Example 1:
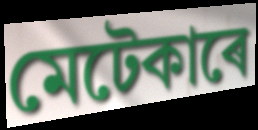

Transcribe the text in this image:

মেটেকাৰে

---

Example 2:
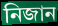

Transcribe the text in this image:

নিজান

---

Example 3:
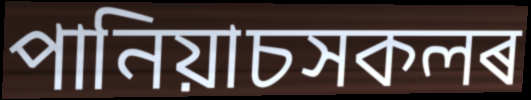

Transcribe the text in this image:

পানিয়াচসকলৰ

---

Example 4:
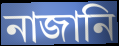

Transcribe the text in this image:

নাজানি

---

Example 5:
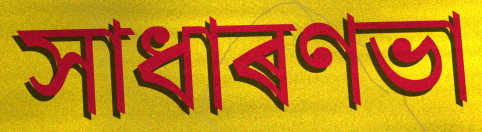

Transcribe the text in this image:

সাধাৰণভা